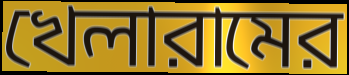
খেলারামের